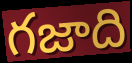
గజాది